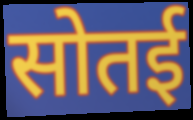
सोतई